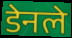
डेनले